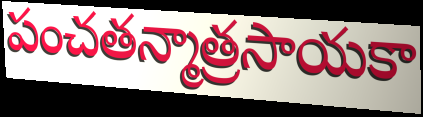
పంచతన్మాత్రసాయకా